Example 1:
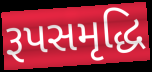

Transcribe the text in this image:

રૂપસમૃદ્ધિ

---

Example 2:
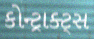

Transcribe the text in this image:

કોન્ટ્રાક્ટ્સ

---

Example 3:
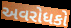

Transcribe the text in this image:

અવરોધકો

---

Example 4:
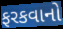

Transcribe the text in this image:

ફરકવાનો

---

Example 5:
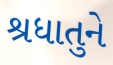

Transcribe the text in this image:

શ્રધાતુને